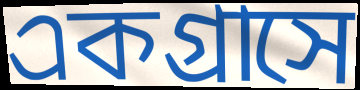
একগ্রাসে